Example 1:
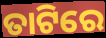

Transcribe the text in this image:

ତାଟିରେ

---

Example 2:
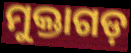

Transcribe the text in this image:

ମୁକ୍ତାଗଡ଼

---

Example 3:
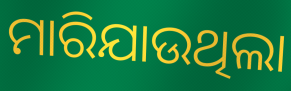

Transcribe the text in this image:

ମାରିଯାଉଥିଲା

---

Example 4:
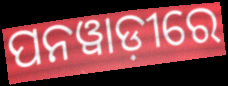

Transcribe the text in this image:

ପନୱାଡ଼ୀରେ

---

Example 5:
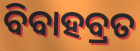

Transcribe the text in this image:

ବିବାହବ୍ରତ